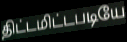
திட்டமிட்டபடியே